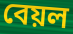
বেয়ল